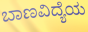
ಬಾಣವಿದ್ಯೆಯ